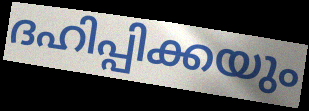
ദഹിപ്പിക്കയും